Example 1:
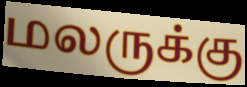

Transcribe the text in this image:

மலருக்கு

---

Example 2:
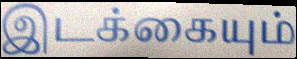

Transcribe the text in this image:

இடக்கையும்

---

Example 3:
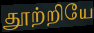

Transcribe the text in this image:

தூற்றியே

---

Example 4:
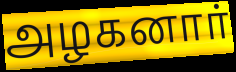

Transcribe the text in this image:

அழகனார்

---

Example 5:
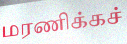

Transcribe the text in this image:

மரணிக்கச்